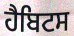
ਹੈਬਿਟਸ